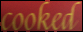
cooked